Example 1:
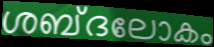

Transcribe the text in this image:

ശബ്ദലോകം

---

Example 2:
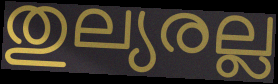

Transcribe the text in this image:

തുല്യരല്ല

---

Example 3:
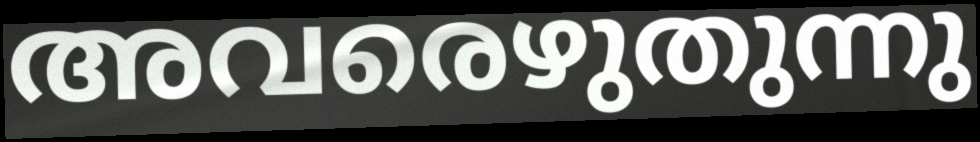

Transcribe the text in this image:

അവരെഴുതുന്നു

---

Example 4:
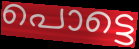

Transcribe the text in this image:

പൊട്ടെ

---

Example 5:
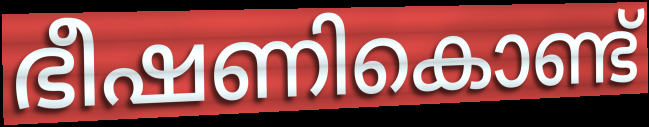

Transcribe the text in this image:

ഭീഷണികൊണ്ട്